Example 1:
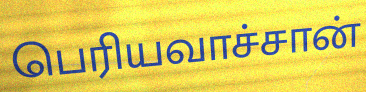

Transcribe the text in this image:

பெரியவாச்சான்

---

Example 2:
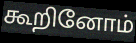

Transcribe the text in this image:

கூறினோம்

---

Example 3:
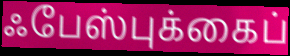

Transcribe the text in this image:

ஃபேஸ்புக்கைப்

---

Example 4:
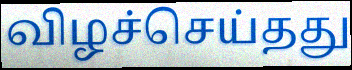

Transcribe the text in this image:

விழச்செய்தது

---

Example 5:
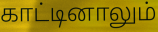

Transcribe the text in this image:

காட்டினாலும்